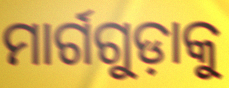
ମାର୍ଗଗୁଡ଼ାକୁ